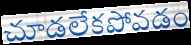
చూడలేకపోవడం